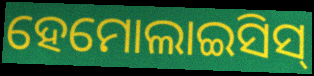
ହେମୋଲାଇସିସ୍